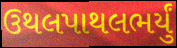
ઉથલપાથલભર્યું